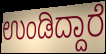
ಉಂಡಿದ್ದಾರೆ